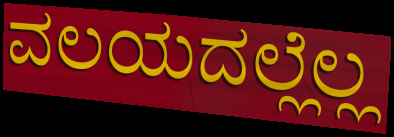
ವಲಯದಲ್ಲೆಲ್ಲ